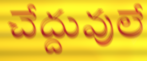
చేద్దువులే